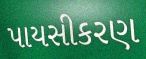
પાયસીકરણ